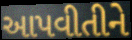
આપવીતીને